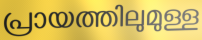
പ്രായത്തിലുമുള്ള